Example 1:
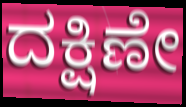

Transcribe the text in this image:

ದಕ್ಷಿಣೇ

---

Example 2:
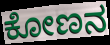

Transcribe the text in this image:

ಕೋಣನ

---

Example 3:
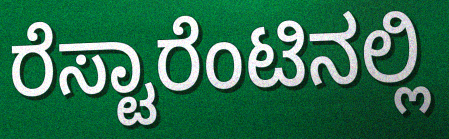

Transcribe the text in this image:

ರೆಸ್ಟಾರೆಂಟಿನಲ್ಲಿ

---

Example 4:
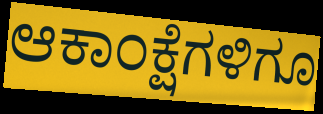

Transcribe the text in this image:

ಆಕಾಂಕ್ಷೆಗಳಿಗೂ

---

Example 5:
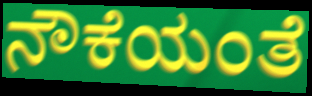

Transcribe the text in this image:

ನೌಕೆಯಂತೆ